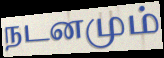
நடனமும்